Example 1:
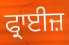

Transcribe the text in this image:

ਫ੍ਰਾਈਜ਼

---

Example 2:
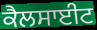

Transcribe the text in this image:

ਕੈਲਸਾਈਟ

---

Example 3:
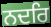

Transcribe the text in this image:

ਨਦਰਿ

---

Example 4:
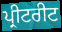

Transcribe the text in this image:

ਪ੍ਰੀਟਰੀਟ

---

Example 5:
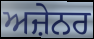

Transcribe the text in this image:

ਅਜ਼ੇਨਰ